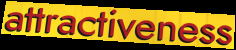
attractiveness